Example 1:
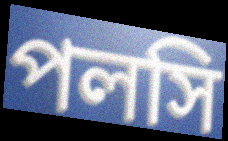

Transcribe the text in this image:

পলসি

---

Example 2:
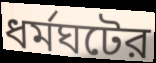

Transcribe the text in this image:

ধর্মঘটের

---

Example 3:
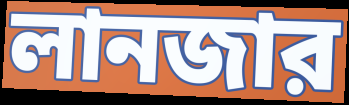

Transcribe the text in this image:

লানজার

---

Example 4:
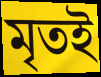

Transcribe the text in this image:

মৃতই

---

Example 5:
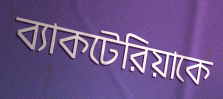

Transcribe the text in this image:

ব্যাকটেরিয়াকে